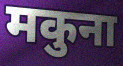
मकुना